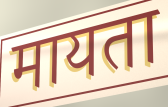
मायता